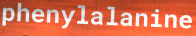
phenylalanine